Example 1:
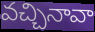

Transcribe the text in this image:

వచ్చినావా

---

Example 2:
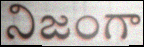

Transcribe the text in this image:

నిజంగా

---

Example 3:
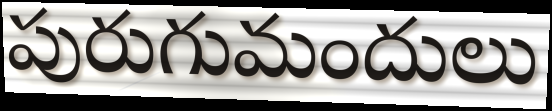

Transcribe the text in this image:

పురుగుమందులు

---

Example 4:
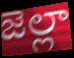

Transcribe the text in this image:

జెల్లా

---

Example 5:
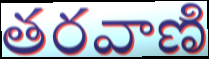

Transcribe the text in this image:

తరవాణి